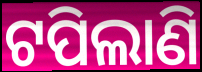
ଟପିଲାଣି